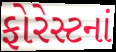
ફોરેસ્ટનાં